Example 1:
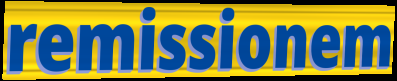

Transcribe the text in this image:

remissionem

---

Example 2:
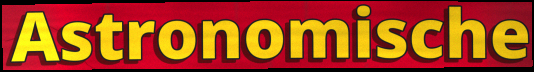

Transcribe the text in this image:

Astronomische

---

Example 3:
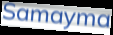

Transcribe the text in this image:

Samayma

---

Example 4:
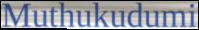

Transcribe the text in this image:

Muthukudumi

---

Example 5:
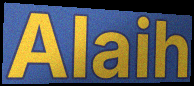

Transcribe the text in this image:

Alaih